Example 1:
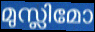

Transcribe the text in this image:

മുസ്ലിമോ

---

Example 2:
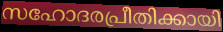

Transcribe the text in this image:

സഹോദരപ്രീതിക്കായി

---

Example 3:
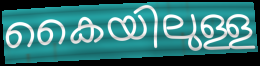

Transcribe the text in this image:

കൈയിലുള്ള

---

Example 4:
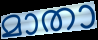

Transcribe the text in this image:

മാതാ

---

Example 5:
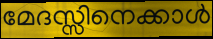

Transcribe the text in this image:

മേദസ്സിനെക്കാൾ